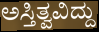
ಅಸ್ತಿತ್ವವಿದ್ದು